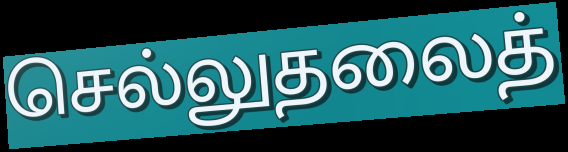
செல்லுதலைத்